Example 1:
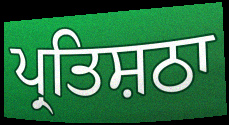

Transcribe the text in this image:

ਪ੍ਰਤਿਸ਼ਠਾ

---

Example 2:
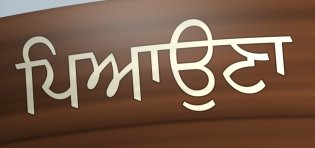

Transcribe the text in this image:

ਪਿਆਉਣਾ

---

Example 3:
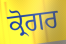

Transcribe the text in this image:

ਕ੍ਰੋਗਰ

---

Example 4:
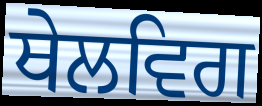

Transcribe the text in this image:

ਥੇਲਵਿਗ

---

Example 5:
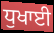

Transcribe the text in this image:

ਧੁਖਾਈ